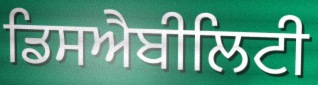
ਡਿਸਐਬੀਲਿਟੀ